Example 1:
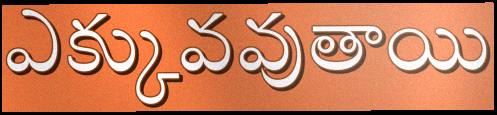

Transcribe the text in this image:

ఎక్కువవుతాయి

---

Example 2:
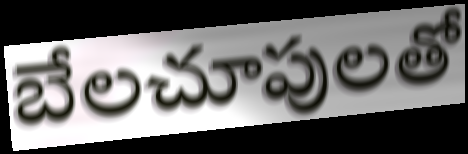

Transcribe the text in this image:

బేలచూపులతో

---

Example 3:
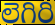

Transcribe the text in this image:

లెగిరి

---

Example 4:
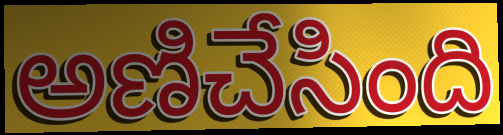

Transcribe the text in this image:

అణిచేసింది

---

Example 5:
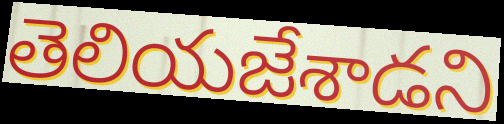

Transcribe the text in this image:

తెలియజేశాడని